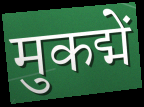
मुकद्में